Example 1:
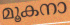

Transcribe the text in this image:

മൂകനാ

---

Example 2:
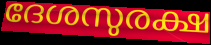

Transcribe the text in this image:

ദേശസുരക്ഷ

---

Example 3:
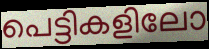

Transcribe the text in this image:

പെട്ടികളിലോ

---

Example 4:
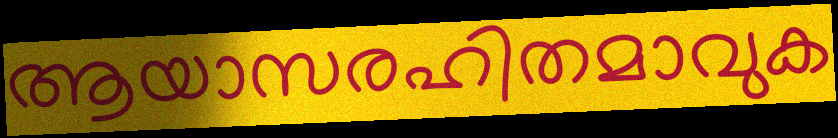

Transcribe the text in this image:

ആയാസരഹിതമാവുക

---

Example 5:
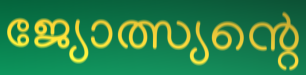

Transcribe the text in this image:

ജ്യോത്സ്യന്റെ